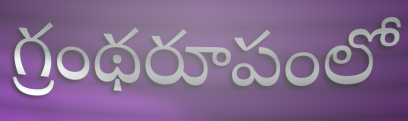
గ్రంథరూపంలో